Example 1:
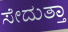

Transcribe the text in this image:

ಸೇದುತ್ತಾ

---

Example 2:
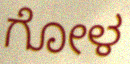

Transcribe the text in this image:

ಗೋಳ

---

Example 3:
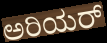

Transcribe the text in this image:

ಅರಿಯರ್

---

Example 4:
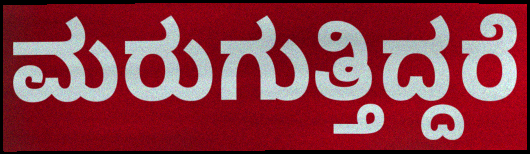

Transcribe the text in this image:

ಮರುಗುತ್ತಿದ್ದರೆ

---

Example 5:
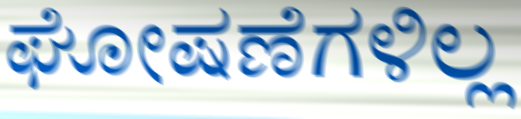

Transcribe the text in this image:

ಘೋಷಣೆಗಳಿಲ್ಲ